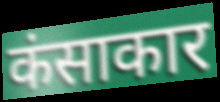
कंसाकार